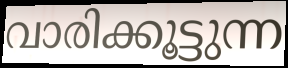
വാരിക്കൂട്ടുന്ന